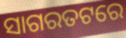
ସାଗରତଟରେ